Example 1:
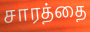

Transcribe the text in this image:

சாரத்தை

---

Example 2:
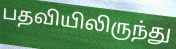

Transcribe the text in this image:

பதவியிலிருந்து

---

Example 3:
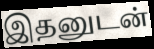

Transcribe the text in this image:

இதனுடன்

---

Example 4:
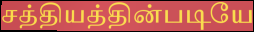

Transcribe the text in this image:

சத்தியத்தின்படியே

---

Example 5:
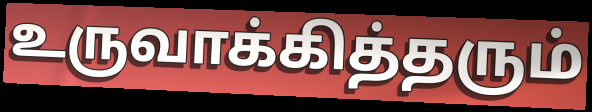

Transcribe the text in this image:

உருவாக்கித்தரும்